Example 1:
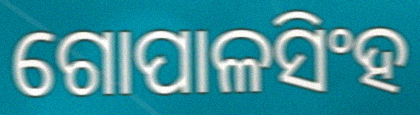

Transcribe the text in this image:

ଗୋପାଳସିଂହ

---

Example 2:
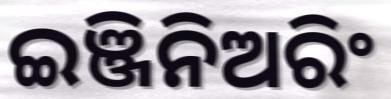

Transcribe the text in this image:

ଇଞ୍ଜିନିଅରିଂ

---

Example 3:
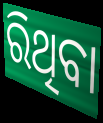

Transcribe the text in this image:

ରିଥିବା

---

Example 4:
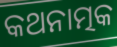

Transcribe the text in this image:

କଥନାତ୍ମକ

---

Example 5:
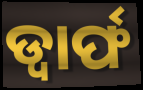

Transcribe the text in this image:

ଡ୍ୱାର୍ଫ